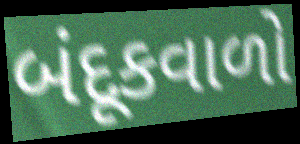
બંદૂકવાળો